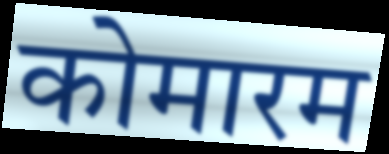
कोमारम